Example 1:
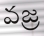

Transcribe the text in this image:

వజ్ర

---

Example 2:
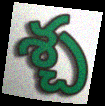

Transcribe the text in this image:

శ్చ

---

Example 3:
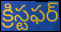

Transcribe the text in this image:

క్రిస్టఫర్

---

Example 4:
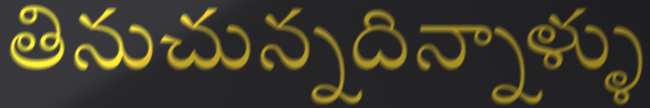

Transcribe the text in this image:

తినుచున్నదిన్నాళ్ళు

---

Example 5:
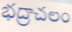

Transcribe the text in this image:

భద్రాచలం